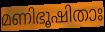
മണിഭൂഷിതാഃ